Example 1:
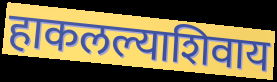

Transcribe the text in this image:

हाकलल्याशिवाय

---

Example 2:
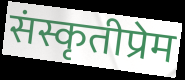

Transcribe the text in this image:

संस्कृतीप्रेम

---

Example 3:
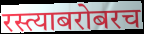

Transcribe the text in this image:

रस्त्याबरोबरच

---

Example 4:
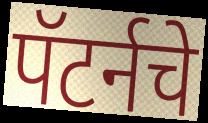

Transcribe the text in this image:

पॅटर्नचे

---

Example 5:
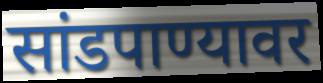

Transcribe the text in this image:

सांडपाण्यावर